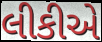
લીકીએ